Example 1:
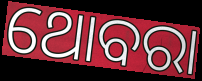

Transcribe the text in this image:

ଥୋବରା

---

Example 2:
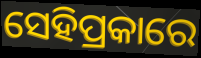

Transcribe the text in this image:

ସେହିପ୍ରକାରେ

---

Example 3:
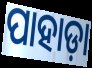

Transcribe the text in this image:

ପାହାଡ଼ା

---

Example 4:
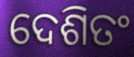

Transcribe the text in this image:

ଦେଶିତଂ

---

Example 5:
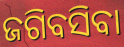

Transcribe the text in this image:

ଜଗିବସିବା